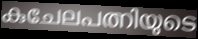
കുചേലപത്നിയുടെ